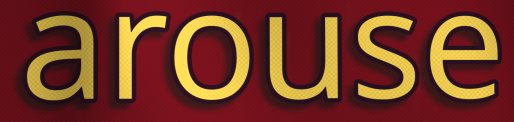
arouse